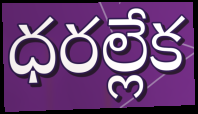
ధరల్లేక